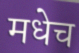
मधेच